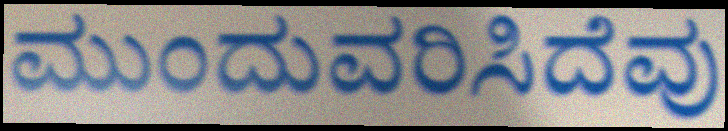
ಮುಂದುವರಿಸಿದೆವು